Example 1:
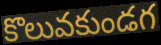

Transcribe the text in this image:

కొలువకుండగ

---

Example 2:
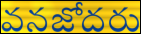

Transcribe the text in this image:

వనజోదరు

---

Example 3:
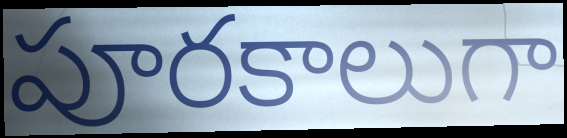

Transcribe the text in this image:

పూరకాలుగా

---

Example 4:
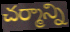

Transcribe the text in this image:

చర్మాన్ని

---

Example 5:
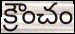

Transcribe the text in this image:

క్రౌంచం